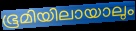
ഭൂമിയിലായാലും